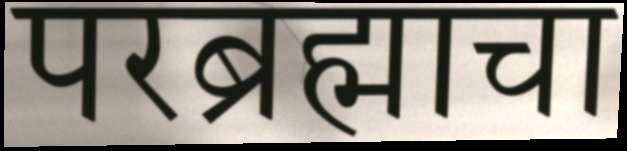
परब्रह्माचा